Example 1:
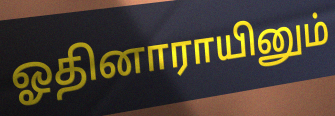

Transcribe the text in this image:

ஓதினாராயினும்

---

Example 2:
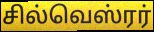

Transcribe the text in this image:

சில்வெஸ்ரர்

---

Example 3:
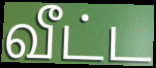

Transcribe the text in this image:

வீட்ட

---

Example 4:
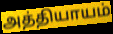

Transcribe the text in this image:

அத்தியாயம்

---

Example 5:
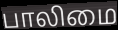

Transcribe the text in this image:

பாலிமை